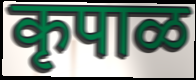
कृपाळ